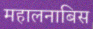
महालनाबिस